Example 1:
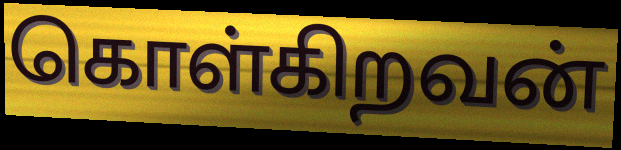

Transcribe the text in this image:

கொள்கிறவன்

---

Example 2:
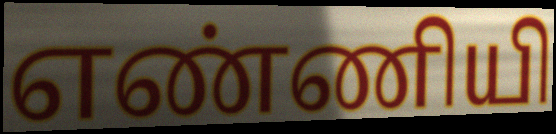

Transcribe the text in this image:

எண்ணியி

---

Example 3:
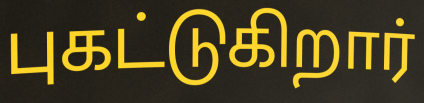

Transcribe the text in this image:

புகட்டுகிறார்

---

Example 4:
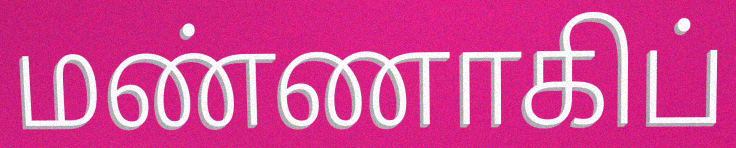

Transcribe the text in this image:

மண்ணாகிப்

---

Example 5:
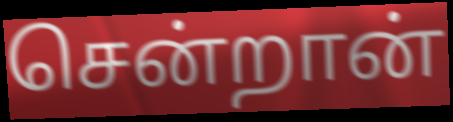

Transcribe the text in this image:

சென்றான்